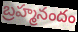
బ్రహ్మనందం